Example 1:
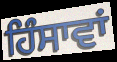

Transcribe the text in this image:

ਹਿੰਸਾਵਾਂ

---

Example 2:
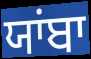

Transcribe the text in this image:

ਯਾਂਬਾ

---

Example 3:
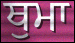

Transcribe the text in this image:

ਥੁਮਾ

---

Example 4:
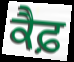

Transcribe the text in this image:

ਕੈਫ਼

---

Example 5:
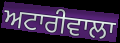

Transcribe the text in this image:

ਅਟਾਰੀਵਾਲਾ